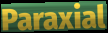
Paraxial